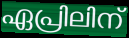
ഏപ്രിലിന്